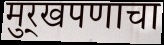
मुर्खपणाचा